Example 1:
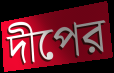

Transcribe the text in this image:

দীপের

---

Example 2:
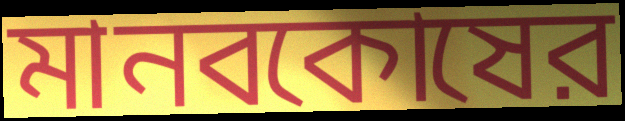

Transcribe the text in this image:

মানবকোষের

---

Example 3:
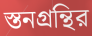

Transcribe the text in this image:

স্তনগ্রন্থির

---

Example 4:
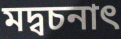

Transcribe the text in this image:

মদ্বচনাৎ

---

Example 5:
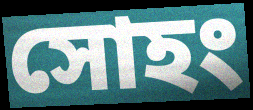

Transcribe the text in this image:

সোহং